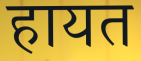
हायत